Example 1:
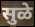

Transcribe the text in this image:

सुळे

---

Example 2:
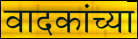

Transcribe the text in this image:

वादकांच्या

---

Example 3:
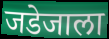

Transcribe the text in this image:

जडेजाला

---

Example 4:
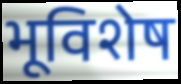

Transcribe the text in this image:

भूविशेष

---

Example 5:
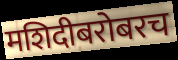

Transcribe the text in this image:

मशिदीबरोबरच